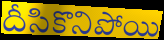
దీసికొనిపోయి